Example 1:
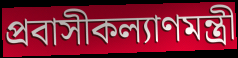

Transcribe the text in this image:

প্রবাসীকল্যাণমন্ত্রী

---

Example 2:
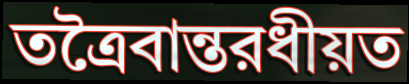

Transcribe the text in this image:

তত্রৈবান্তরধীয়ত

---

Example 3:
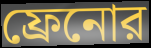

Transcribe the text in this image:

ফ্রেনোর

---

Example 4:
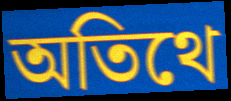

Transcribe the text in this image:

অতিথে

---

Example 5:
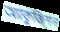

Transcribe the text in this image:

অ্যাকুজিশন